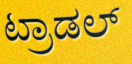
ಟ್ರಾಡಲ್